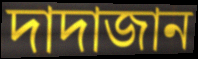
দাদাজান